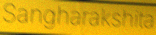
Sangharakshita